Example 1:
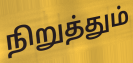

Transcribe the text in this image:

நிறுத்தும்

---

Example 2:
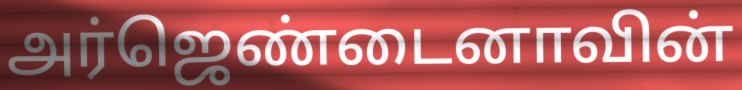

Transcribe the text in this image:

அர்ஜெண்டைனாவின்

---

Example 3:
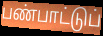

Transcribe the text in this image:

பண்பாட்டுப்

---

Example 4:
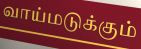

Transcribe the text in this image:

வாய்மடுக்கும்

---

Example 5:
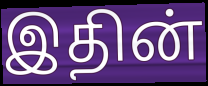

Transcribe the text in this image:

இதின்